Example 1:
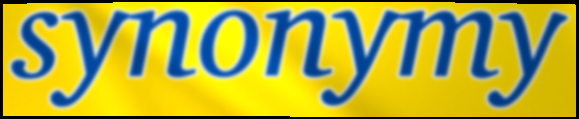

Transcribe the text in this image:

synonymy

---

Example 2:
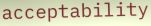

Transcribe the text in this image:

acceptability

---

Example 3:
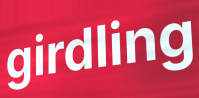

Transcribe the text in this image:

girdling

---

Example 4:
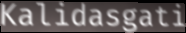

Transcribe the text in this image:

Kalidasgati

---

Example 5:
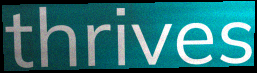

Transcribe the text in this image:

thrives